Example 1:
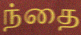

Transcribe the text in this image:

ந்தை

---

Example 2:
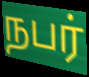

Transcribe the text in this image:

நபர்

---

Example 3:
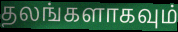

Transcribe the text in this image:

தலங்களாகவும்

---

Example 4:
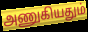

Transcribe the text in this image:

அணுகியதும்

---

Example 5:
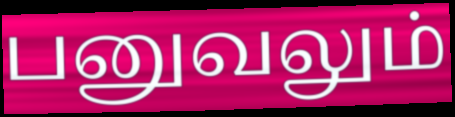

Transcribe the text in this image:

பனுவலும்